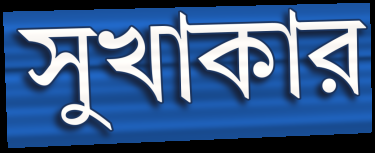
সুখাকার